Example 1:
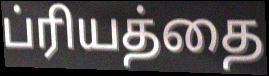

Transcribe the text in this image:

ப்ரியத்தை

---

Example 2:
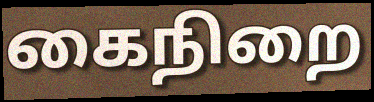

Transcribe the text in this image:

கைநிறை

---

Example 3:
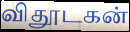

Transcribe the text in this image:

விதூடகன்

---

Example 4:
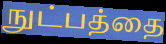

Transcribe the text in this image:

நுட்பத்தை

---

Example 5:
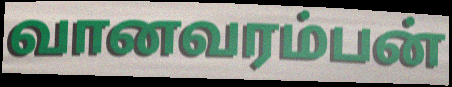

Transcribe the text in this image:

வானவரம்பன்